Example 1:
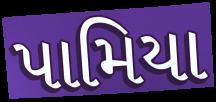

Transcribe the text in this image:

પામિયા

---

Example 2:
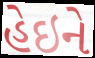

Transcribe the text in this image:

હેઇને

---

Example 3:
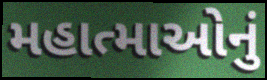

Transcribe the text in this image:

મહાત્માઓનું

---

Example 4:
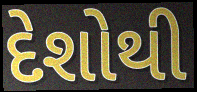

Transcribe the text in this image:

દેશોથી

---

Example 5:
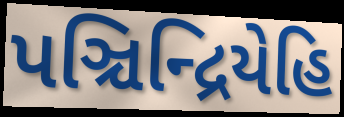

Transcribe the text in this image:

પઞ્ચિન્દ્રિયેહિ